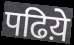
पढिय़े